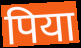
पिया